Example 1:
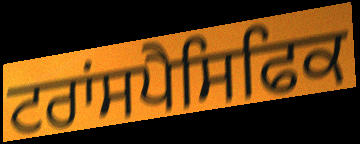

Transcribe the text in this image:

ਟਰਾਂਸਪੈਸਿਫਿਕ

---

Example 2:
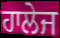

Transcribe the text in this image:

ਹਾਲੇਜ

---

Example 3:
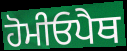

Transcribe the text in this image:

ਹੋਮੀਓਪੈਥ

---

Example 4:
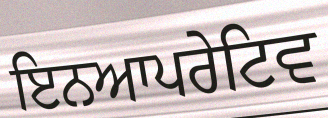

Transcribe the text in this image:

ਇਨਆਪਰੇਟਿਵ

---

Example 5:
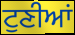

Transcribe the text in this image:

ਟੁਣੀਆਂ